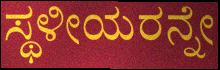
ಸ್ಥಳೀಯರನ್ನೇ